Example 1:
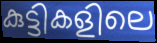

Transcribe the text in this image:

കുട്ടികളിലെ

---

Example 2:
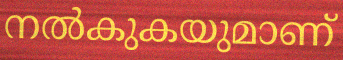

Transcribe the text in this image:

നൽകുകയുമാണ്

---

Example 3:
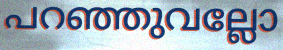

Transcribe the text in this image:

പറഞ്ഞുവല്ലോ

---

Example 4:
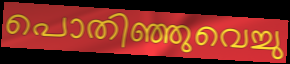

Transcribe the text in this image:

പൊതിഞ്ഞുവെച്ചു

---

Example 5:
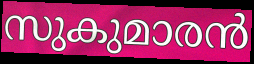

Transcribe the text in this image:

സുകുമാരൻ